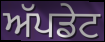
ਅੱਪਡੇਟ